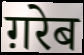
ग़रेब